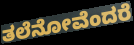
ತಲೆನೋವೆಂದರೆ